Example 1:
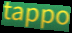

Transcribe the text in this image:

tappo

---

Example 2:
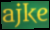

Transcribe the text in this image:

ajke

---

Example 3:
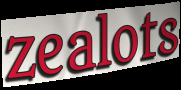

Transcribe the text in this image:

zealots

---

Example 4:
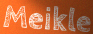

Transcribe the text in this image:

Meikle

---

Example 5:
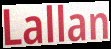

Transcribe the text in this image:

Lallan